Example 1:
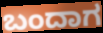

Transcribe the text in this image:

ಬಂದಾಗ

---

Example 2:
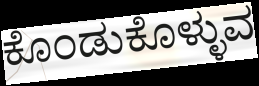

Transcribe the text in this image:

ಕೊಂಡುಕೊಳ್ಳುವ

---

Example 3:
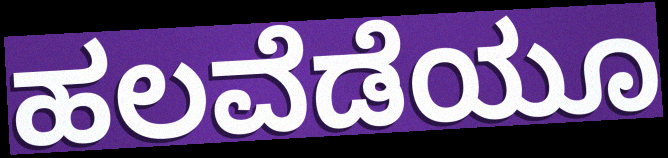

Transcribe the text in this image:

ಹಲವೆಡೆಯೂ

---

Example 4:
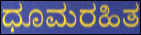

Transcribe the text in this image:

ಧೂಮರಹಿತ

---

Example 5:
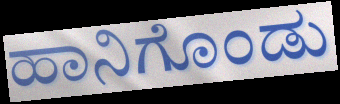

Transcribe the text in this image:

ಹಾನಿಗೊಂಡು